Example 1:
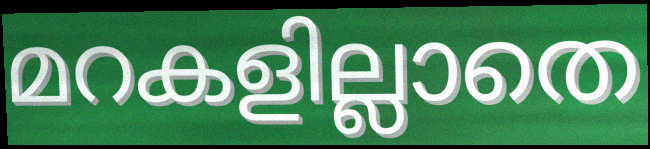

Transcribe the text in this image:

മറകളില്ലാതെ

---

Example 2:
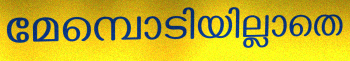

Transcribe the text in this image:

മേമ്പൊടിയില്ലാതെ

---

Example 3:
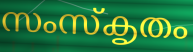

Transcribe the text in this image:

സംസ്‌കൃതം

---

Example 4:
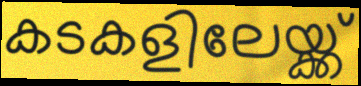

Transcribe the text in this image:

കടകളിലേയ്ക്ക്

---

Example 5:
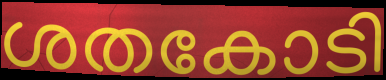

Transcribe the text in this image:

ശതകോടി